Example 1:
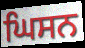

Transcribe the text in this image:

ਘਿਸਨ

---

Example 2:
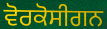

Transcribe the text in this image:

ਵੋਰਕੋਸੀਗਨ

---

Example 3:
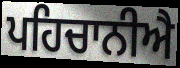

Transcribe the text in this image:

ਪਹਿਚਾਨੀਐ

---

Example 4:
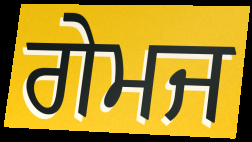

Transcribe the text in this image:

ਗੇਮਜ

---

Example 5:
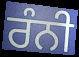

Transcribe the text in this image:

ਰੰਨੀ